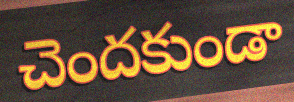
చెందకుండా